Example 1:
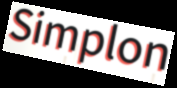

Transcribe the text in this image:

Simplon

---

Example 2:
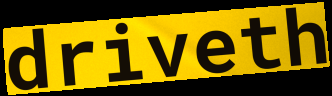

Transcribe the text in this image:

driveth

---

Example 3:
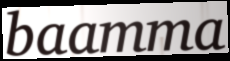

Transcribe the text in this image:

baamma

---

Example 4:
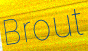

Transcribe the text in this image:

Brout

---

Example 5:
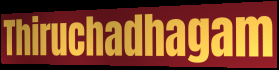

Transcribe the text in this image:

Thiruchadhagam